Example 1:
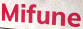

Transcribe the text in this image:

Mifune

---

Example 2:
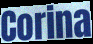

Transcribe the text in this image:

Corina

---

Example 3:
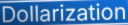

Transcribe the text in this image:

Dollarization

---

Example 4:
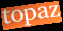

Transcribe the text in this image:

topaz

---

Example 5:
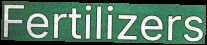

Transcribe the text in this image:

Fertilizers